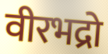
वीरभद्रो